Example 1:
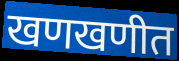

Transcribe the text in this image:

खणखणीत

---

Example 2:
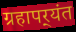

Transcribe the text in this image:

ग्रहापर्यंत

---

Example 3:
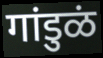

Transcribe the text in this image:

गांडुळं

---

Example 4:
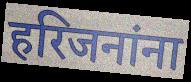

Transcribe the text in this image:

हरिजनांना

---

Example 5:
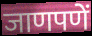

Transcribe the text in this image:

जाणपणें